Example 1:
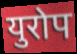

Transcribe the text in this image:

युरोप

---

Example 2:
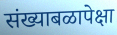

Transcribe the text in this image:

संख्याबळापेक्षा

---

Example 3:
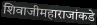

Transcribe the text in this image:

शिवाजीमहाराजांकडे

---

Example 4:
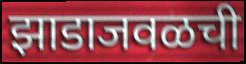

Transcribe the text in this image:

झाडाजवळची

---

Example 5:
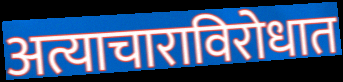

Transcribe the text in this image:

अत्याचाराविरोधात